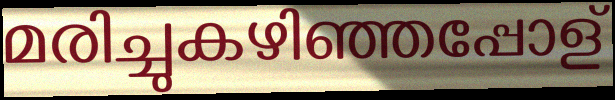
മരിച്ചുകഴിഞ്ഞപ്പോള്